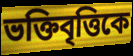
ভক্তিবৃত্তিকে